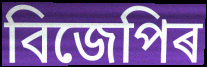
বিজেপিৰ